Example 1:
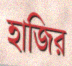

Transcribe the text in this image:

হাজির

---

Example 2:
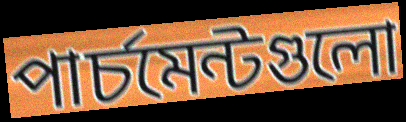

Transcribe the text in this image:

পার্চমেন্টগুলো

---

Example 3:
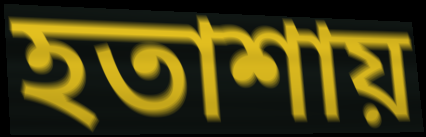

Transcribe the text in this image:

হতাশায়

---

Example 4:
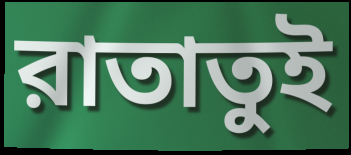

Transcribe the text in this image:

রাতাতুই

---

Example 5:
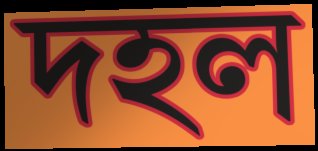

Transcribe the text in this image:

দহল